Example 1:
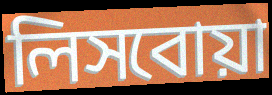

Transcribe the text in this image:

লিসবোয়া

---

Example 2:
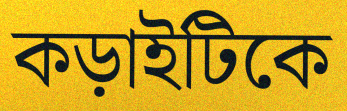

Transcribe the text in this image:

কড়াইটিকে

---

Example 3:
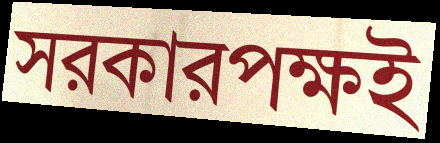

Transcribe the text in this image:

সরকারপক্ষই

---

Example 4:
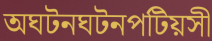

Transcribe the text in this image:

অঘটনঘটনপটিয়সী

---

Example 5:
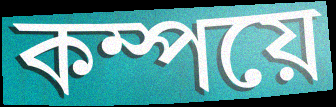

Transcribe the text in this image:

কম্পয়ে